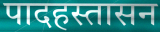
पादहस्तासन